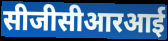
सीजीसीआरआई